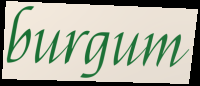
burgum